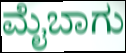
ಮೈಬಾಗು